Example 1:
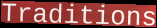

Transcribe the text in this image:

Traditions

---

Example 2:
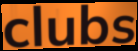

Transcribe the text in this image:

clubs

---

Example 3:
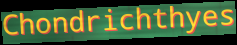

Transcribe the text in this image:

Chondrichthyes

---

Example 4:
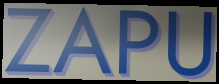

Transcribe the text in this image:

ZAPU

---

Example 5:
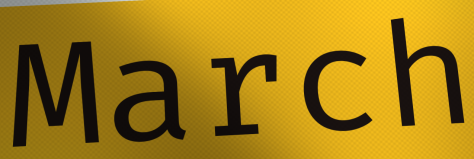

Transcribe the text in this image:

March